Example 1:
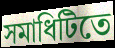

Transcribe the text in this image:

সমাধিটিতে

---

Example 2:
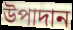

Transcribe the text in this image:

উপাদান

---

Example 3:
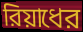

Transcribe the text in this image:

রিয়াধের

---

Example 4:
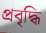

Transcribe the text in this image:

প্রবৃদ্ধি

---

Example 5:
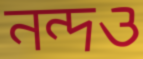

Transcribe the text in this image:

নন্দও